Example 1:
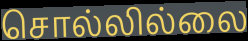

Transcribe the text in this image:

சொல்லில்லை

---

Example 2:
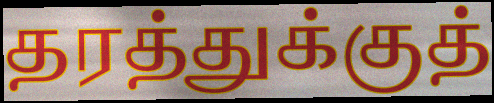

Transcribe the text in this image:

தரத்துக்குத்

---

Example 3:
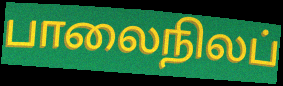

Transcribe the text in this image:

பாலைநிலப்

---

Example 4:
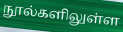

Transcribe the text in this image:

நூல்களிலுள்ள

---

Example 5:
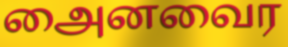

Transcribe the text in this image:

அைனவைர